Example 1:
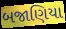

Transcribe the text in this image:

બજાણિયા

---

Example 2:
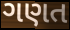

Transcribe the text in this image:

ગણત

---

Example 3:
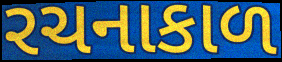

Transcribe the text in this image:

રચનાકાળ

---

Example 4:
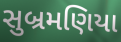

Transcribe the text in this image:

સુબ્રમણિયા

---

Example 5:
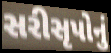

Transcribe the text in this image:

સરીસૃપોનું